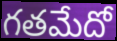
గతమేదో